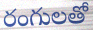
రంగులతో